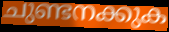
ചുണ്ടനക്കുക